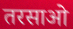
तरसाओ